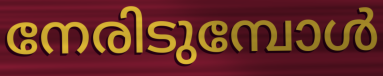
നേരിടുമ്പോൾ